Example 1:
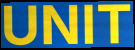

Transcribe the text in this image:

UNIT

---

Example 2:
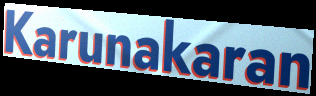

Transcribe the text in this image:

Karunakaran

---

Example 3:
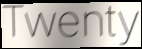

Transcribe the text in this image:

Twenty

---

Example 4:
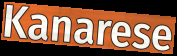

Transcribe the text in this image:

Kanarese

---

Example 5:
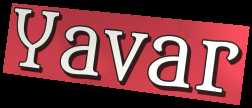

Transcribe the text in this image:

Yavar